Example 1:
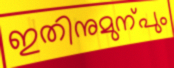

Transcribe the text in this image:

ഇതിനുമുന്പും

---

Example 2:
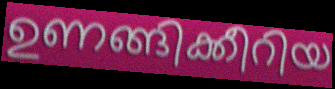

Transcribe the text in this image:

ഉണങ്ങിക്കീറിയ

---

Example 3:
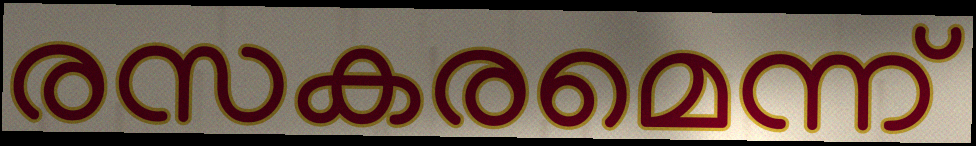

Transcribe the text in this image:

രസകരമെന്ന്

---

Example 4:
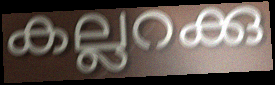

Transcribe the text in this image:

കല്ലറക്കു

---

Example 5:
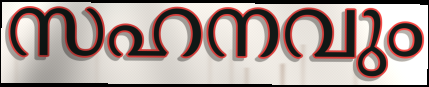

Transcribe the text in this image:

സഹനവും